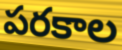
పరకాల